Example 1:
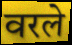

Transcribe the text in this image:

वरले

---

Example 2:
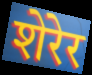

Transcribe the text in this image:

शेरेर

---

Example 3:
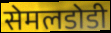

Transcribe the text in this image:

सेमलडोडी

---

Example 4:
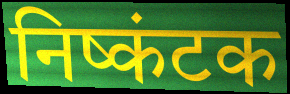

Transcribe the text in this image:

निष्कंटक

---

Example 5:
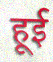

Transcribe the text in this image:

हूई